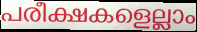
പരീക്ഷകളെല്ലാം